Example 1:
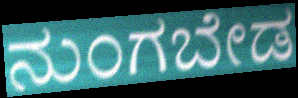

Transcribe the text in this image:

ನುಂಗಬೇಡ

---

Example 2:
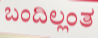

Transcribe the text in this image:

ಬಂದಿಲ್ಲಂತ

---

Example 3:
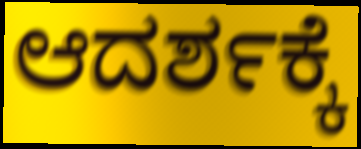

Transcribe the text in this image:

ಆದರ್ಶಕ್ಕೆ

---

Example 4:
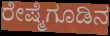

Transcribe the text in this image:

ರೇಷ್ಮೆಗೂಡಿನ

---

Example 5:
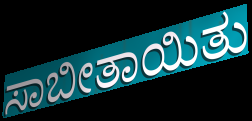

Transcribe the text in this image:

ಸಾಬೀತಾಯಿತು